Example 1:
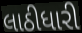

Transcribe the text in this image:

લાઠીધારી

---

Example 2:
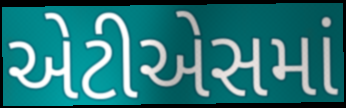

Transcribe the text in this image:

એટીએસમાં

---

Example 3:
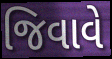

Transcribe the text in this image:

જિવાવે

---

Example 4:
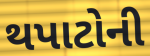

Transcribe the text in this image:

થપાટોની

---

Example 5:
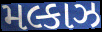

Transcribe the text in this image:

મલ્કાઝ